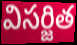
విసర్జిత